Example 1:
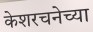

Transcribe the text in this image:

केशरचनेच्या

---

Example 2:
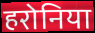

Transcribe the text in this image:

हरोनिया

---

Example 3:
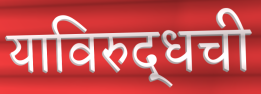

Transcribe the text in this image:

याविरुद्धची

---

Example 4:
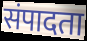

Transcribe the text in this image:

संपादता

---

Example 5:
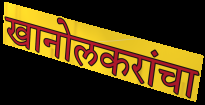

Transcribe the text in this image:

खानोलकरांचा